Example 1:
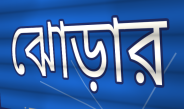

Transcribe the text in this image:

ঝোড়ার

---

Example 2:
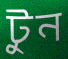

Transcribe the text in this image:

টুন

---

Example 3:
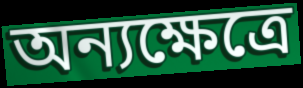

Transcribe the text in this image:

অন্যক্ষেত্রে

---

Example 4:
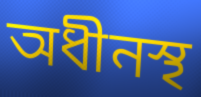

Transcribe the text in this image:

অধীনস্থ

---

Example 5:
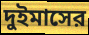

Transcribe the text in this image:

দুইমাসের